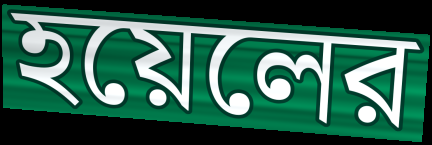
হয়েলের